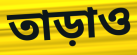
তাড়াও